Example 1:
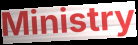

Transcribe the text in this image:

Ministry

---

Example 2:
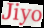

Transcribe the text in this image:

Jiyo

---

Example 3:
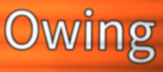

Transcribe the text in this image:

Owing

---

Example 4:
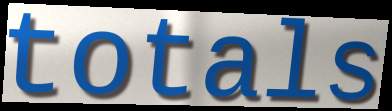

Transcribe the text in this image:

totals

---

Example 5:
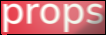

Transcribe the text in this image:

props